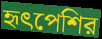
হৃৎপেশির